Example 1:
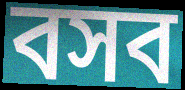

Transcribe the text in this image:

বসব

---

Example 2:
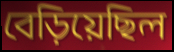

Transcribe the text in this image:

বেড়িয়েছিল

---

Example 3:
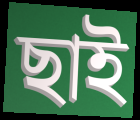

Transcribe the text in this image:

ছাই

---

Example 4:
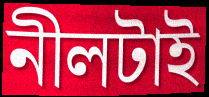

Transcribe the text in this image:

নীলটাই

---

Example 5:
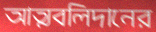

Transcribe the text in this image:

আত্মবলিদানের